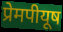
प्रेमपीयूष